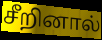
சீறினால்